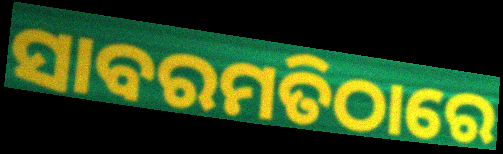
ସାବରମତିଠାରେ